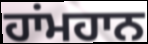
ਹਾਂਮਹਾਨ